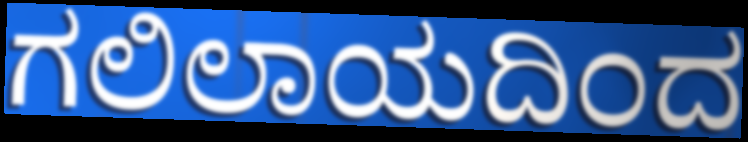
ಗಲಿಲಾಯದಿಂದ